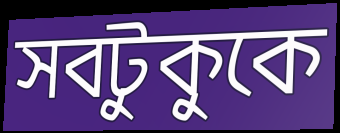
সবটুকুকে